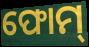
ଫୋମ୍